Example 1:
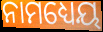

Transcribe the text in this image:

ନାମଧ୍ୟେୟ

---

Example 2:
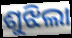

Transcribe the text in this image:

ଶୁଝିଲା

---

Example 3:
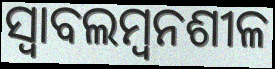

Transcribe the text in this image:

ସ୍ୱାବଲମ୍ୱନଶୀଳ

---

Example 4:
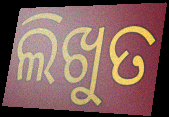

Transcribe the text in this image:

ଲିଖୁତ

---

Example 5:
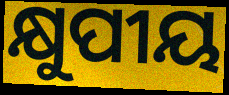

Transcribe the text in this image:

କ୍ଷୁପୀୟ